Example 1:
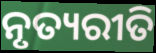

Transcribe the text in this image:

ନୃତ୍ୟରୀତି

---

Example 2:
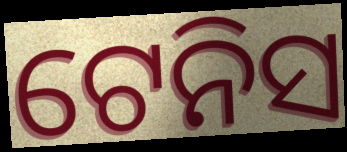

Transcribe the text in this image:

ଟେନିସ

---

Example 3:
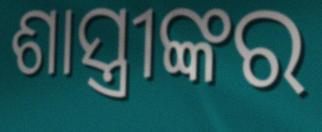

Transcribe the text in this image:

ଶାସ୍ତ୍ରୀଙ୍କର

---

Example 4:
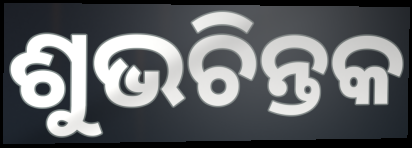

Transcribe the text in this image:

ଶୁଭଚିନ୍ତକ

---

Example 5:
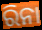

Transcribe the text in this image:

ରିନା